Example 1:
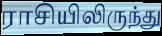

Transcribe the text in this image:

ராசியிலிருந்து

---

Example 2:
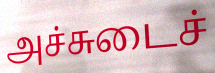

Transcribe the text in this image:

அச்சுடைச்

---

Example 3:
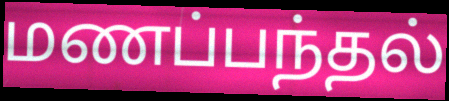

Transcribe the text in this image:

மணப்பந்தல்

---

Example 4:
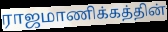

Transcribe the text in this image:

ராஜமாணிக்கத்தின்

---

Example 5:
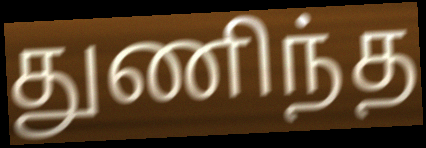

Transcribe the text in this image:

துணிந்த